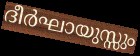
ദീർഘായുസ്സും